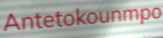
Antetokounmpo